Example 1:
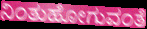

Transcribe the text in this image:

ನಿಂತುಹೋಗುವಂತೆ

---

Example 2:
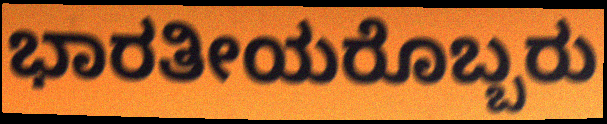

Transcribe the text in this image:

ಭಾರತೀಯರೊಬ್ಬರು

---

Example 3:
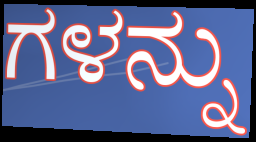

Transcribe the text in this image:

ಗಳನ್ನು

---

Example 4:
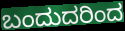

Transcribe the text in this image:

ಬಂದುದರಿಂದ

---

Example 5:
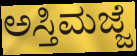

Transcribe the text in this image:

ಅಸ್ತಿಮಜ್ಜೆ